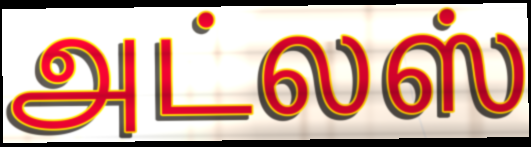
அட்லஸ்